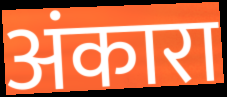
अंकारा